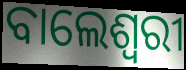
ବାଲେଶ୍ୱରୀ